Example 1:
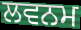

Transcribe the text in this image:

ਲਵਨਮ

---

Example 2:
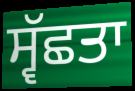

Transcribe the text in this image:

ਸ੍ਵੱਛਤਾ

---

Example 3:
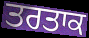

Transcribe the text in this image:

ਤਰਤਾਕ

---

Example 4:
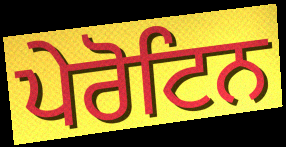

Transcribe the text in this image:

ਪੇਰੋਟਿਨ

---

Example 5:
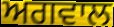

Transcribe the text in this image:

ਅਗਵਾਲ